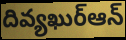
దివ్యఖుర్ఆన్